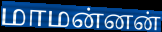
மாமன்னன்